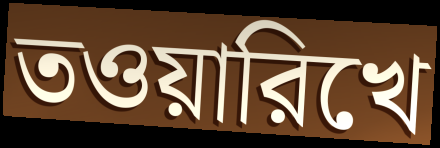
তওয়ারিখে